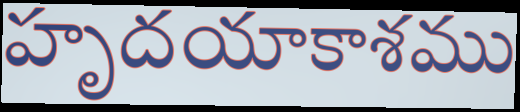
హృదయాకాశము